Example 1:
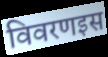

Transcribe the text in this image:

विवरणइस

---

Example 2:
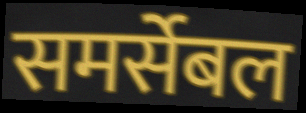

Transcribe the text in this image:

समर्सेबल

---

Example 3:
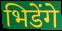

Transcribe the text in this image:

भिडेंगे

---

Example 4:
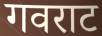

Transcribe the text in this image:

गवराट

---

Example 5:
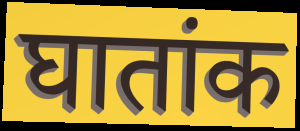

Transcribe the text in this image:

घातांक